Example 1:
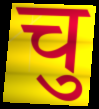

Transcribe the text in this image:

चु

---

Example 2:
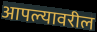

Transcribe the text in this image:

आपल्यावरील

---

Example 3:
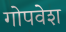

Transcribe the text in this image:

गोपवेश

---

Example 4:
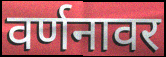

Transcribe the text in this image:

वर्णनावर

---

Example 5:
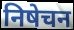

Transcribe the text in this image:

निषेचन